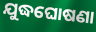
ଯୁଦ୍ଧଘୋଷଣା